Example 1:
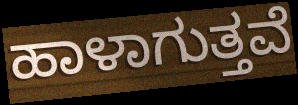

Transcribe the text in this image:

ಹಾಳಾಗುತ್ತವೆ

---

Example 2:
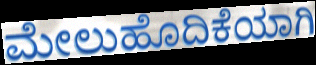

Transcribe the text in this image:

ಮೇಲುಹೊದಿಕೆಯಾಗಿ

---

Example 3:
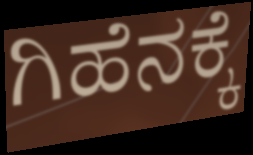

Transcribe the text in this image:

ಗಿಹೆನಕ್ಕೆ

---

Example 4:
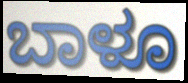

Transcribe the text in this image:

ಬಾಳೂ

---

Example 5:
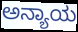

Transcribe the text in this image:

ಅನ್ಯಾಯ